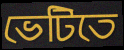
ভেটিতে